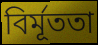
বির্মূততা